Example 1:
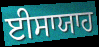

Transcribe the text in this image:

ਈਸਾਯਾਹ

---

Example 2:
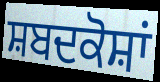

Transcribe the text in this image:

ਸ਼ਬਦਕੋਸ਼ਾਂ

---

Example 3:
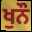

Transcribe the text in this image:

ਖੁਨੌ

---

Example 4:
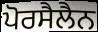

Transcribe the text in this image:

ਪੋਰਸੈਲੈਨ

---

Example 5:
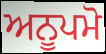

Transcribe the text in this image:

ਅਨੂਪਮੋ